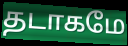
தடாகமே